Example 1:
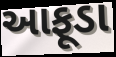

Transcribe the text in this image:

આફૂડા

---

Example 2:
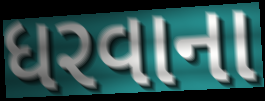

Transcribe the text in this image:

ધરવાના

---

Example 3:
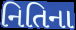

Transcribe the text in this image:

નિતિના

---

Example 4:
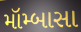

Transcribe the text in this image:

મૉમ્બાસા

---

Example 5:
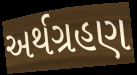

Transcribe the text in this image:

અર્થગ્રહણ